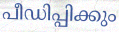
പീഡിപ്പിക്കും